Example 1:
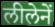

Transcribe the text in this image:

लीलेनें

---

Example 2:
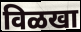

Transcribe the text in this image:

विळखा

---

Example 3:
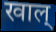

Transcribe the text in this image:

खाल्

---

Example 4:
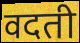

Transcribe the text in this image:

वदती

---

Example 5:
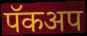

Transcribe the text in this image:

पॅकअप